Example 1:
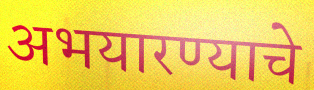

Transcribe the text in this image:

अभयारण्याचे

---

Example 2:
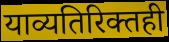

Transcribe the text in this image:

याव्यतिरिक्तही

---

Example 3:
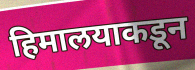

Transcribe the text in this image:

हिमालयाकडून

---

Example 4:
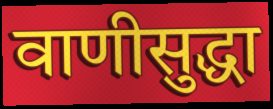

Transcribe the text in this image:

वाणीसुद्धा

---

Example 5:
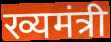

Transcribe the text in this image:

ख्यमंत्री